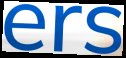
ers